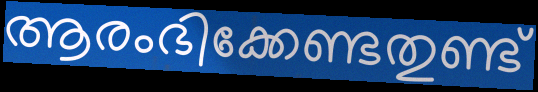
ആരംഭിക്കേണ്ടതുണ്ട്